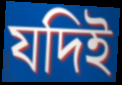
যদিই